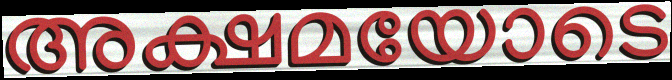
അക്ഷമയോടെ